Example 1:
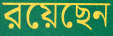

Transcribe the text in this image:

রয়েছেন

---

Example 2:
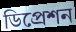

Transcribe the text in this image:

ডিপ্রেশন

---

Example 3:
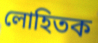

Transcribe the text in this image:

লোহিতক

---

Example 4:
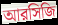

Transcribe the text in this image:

আরসিজি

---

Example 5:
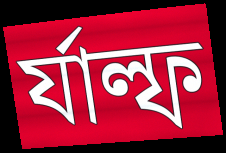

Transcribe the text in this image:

র্যাল্ফ